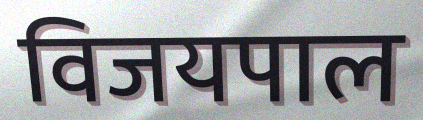
विजयपाल